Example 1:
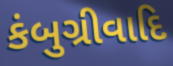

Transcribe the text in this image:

કંબુગ્રીવાદિ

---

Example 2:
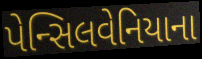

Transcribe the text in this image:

પેન્સિલવેનિયાના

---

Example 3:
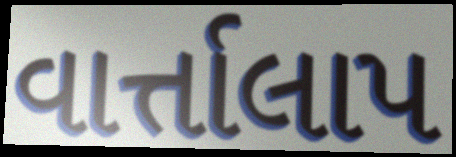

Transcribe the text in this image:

વાર્ત્તાલાપ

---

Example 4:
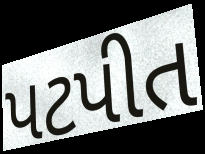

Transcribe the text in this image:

પટપીત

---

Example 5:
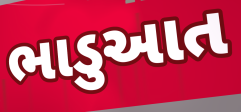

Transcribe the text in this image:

ભાડુઆત